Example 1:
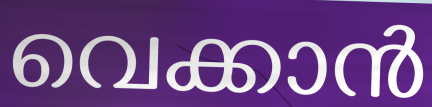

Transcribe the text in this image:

വെക്കാൻ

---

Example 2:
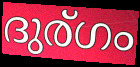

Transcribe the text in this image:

ദുര്ഗം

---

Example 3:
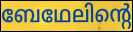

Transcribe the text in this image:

ബേഥേലിന്റെ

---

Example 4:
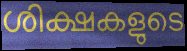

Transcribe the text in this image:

ശിക്ഷകളുടെ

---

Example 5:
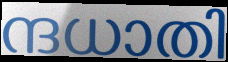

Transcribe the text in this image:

ന്ദധാതി